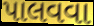
પાલવવા